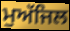
ਮੁਅੱਜਿਲ